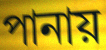
পানায়